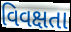
વિવક્ષતા